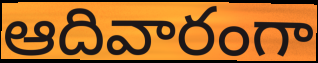
ఆదివారంగా